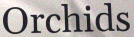
Orchids